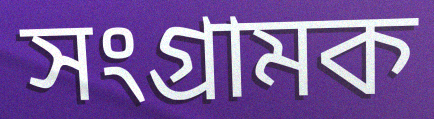
সংগ্ৰামক